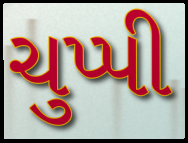
ચુપ્પી